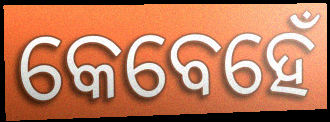
କେବେହେଁ